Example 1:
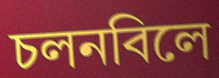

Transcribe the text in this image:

চলনবিলে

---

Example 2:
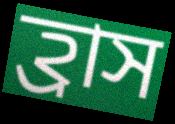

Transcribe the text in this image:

হ্রাস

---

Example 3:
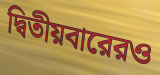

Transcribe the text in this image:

দ্বিতীয়বারেরও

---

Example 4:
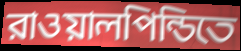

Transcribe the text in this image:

রাওয়ালপিন্ডিতে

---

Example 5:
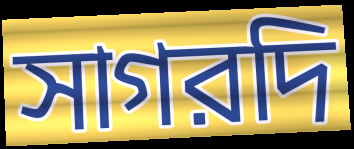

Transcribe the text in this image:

সাগরদি